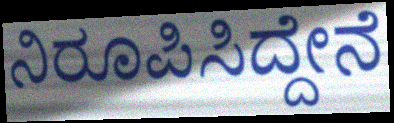
ನಿರೂಪಿಸಿದ್ದೇನೆ